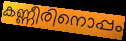
കണ്ണീരിനൊപ്പം